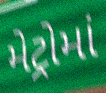
મેટ્રોમાં